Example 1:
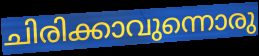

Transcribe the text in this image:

ചിരിക്കാവുന്നൊരു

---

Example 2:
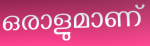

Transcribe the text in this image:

ഒരാളുമാണ്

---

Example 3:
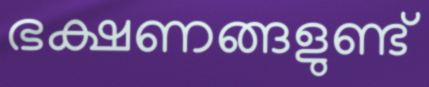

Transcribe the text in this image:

ഭക്ഷണങ്ങളുണ്ട്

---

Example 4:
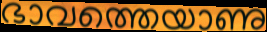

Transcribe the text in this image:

ഭാവത്തെയാണു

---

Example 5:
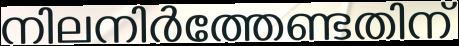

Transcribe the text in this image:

നിലനിർത്തേണ്ടതിന്